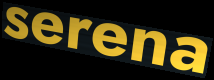
serena